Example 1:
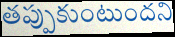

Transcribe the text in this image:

తప్పుకుంటుందని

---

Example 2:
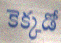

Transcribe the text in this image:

కెక్కడో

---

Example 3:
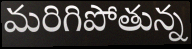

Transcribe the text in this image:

మరిగిపోతున్న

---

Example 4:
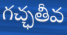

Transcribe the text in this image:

గచ్ఛతీవ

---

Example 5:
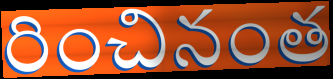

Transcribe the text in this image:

రించినంత